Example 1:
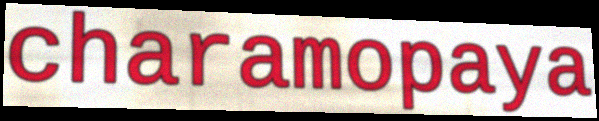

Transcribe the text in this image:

charamopaya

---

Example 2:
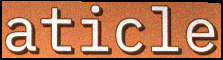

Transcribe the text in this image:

aticle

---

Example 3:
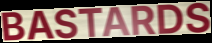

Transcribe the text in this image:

BASTARDS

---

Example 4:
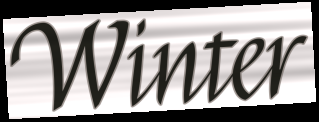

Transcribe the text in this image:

Winter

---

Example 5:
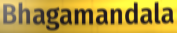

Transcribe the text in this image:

Bhagamandala